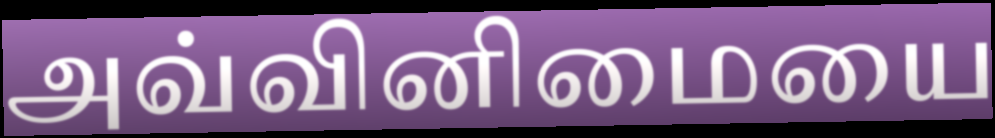
அவ்வினிமையை